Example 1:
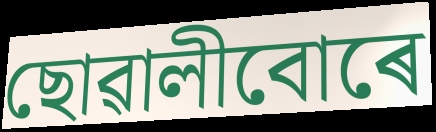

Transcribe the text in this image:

ছোৱালীবোৰে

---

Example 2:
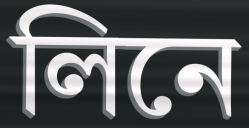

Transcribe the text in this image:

লিনে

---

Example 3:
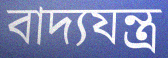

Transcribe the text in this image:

বাদ্যযন্ত্ৰ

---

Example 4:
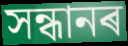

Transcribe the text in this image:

সন্ধানৰ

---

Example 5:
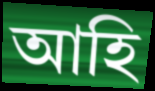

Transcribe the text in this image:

আহি